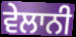
ਵੇਲਾਨੀ